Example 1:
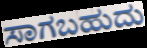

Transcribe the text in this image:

ಸಾಗಬಹುದು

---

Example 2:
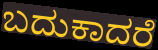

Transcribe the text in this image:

ಬದುಕಾದರೆ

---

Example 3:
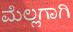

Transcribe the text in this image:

ಮೆಲ್ಲಗಾಗಿ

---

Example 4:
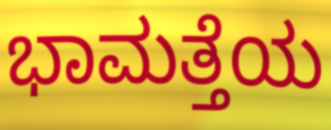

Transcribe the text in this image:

ಭಾಮತ್ತೆಯ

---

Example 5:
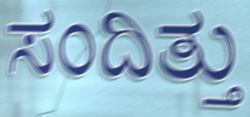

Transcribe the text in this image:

ಸಂದಿತ್ತು